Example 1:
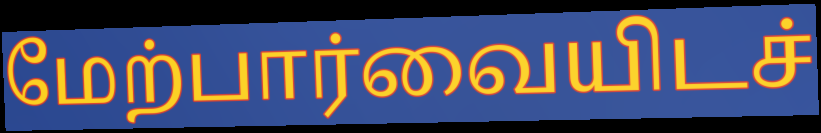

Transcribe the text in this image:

மேற்பார்வையிடச்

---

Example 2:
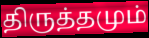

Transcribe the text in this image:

திருத்தமும்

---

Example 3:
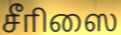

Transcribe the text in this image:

சீரிஸை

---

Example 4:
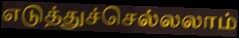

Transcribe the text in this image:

எடுத்துச்செல்லலாம்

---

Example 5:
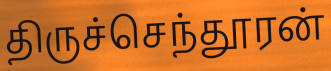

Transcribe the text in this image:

திருச்செந்தூரன்